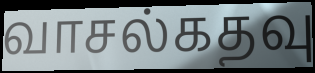
வாசல்கதவு